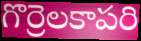
గొర్రెలకాపరి